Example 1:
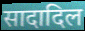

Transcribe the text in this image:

सादादिल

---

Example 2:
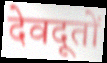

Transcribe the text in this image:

देवदूतों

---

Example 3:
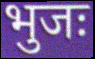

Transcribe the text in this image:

भुजः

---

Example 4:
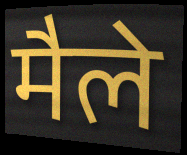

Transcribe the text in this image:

मैले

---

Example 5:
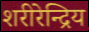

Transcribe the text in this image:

शरीरेन्द्रिय